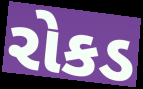
રોકડ